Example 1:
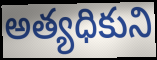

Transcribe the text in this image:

అత్యధికుని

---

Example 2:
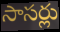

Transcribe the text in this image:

సాసర్లు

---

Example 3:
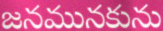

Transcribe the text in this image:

జనమునకును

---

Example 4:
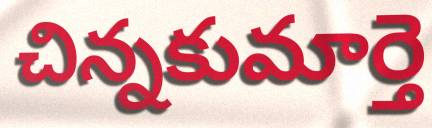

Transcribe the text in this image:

చిన్నకుమార్తె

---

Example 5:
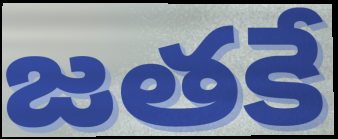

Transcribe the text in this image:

జతకే